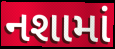
નશામાં